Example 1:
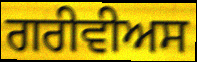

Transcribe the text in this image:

ਗਰੀਵੀਅਸ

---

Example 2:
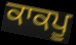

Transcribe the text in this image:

ਕਾਕਪੂ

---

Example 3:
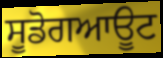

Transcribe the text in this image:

ਸੂਡੋਗਆਊਟ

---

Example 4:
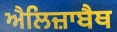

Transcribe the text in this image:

ਐਲਿਜ਼ਾਬੈਥ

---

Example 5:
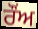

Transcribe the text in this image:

ਰੌਂਅ